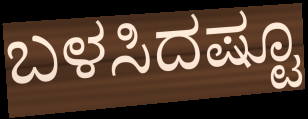
ಬಳಸಿದಷ್ಟೂ